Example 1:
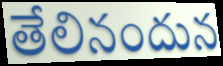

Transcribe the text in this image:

తేలినందున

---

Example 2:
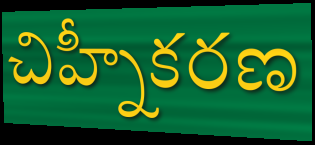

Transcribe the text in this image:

చిహ్నీకరణ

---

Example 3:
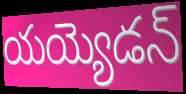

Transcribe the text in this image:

యయ్యెడన్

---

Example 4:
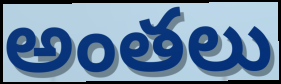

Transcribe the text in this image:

అంతలు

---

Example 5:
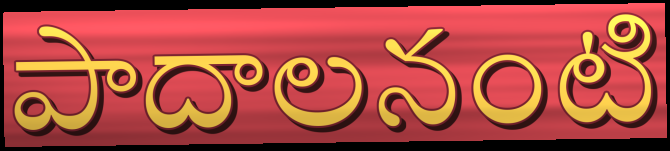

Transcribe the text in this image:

పాదాలనంటి